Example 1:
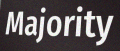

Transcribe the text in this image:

Majority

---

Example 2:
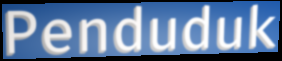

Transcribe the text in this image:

Penduduk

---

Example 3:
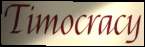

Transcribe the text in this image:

Timocracy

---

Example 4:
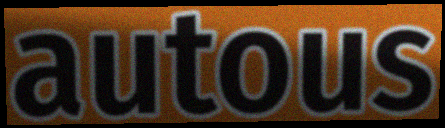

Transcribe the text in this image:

autous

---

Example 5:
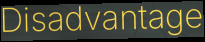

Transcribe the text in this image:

Disadvantage